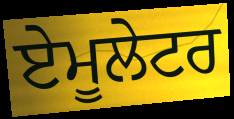
ਏਮੂਲੇਟਰ